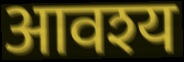
आवश्य